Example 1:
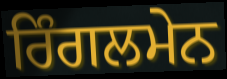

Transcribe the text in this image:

ਰਿੰਗਲਮੇਨ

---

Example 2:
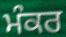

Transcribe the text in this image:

ਮੰਕਰ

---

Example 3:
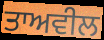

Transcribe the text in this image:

ਤਾਅਵੀਲ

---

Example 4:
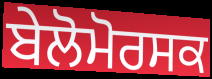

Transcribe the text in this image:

ਬੇਲੋਮੋਰਸਕ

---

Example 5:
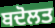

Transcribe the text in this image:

ਬਦੋਲਤ